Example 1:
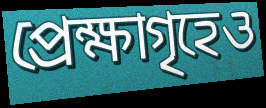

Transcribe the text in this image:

প্রেক্ষাগৃহেও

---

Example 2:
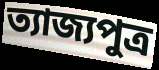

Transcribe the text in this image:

ত্যাজ্যপুত্র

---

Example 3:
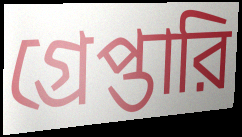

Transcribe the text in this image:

গ্রেপ্তারি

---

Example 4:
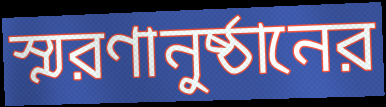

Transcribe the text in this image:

স্মরণানুষ্ঠানের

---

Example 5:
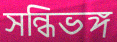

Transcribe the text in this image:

সন্ধিভঙ্গ